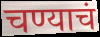
चण्याचं